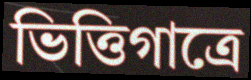
ভিত্তিগাত্রে